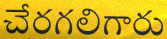
చేరగలిగారు